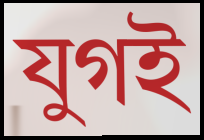
যুগই